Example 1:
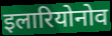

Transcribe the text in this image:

इलारियोनोव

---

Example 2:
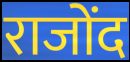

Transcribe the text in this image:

राजोंद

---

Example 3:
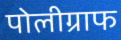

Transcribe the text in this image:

पोलीग्राफ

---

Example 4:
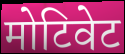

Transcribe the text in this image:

मोटिवेट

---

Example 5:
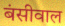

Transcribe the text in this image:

बंसीवाल